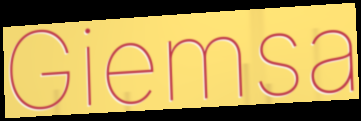
Giemsa